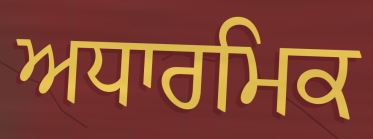
ਅਧਾਰਮਿਕ